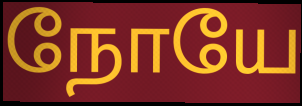
நோயே